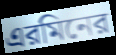
এরমিনের